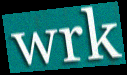
wrk